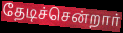
தேடிச்சென்றார்